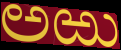
ಅಱು